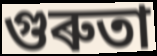
গুৰুতা